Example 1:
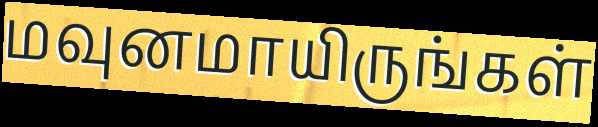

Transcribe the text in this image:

மவுனமாயிருங்கள்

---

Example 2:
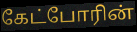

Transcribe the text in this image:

கேட்போரின்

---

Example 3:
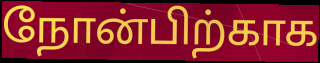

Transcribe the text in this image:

நோன்பிற்காக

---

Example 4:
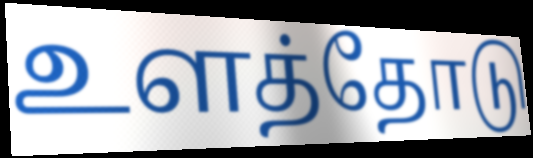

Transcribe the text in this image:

உளத்தோடு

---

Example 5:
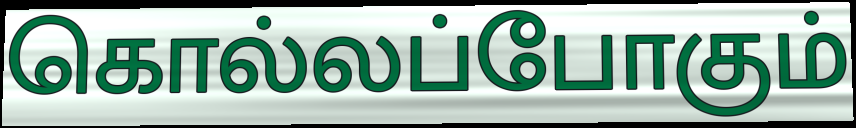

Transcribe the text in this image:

கொல்லப்போகும்